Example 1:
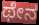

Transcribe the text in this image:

ಥೇನ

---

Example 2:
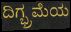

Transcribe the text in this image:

ದಿಗ್ಭ್ರಮೆಯ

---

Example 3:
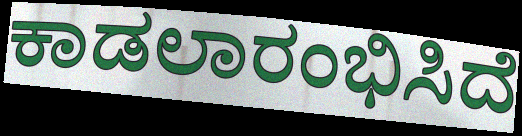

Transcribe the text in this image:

ಕಾಡಲಾರಂಭಿಸಿದೆ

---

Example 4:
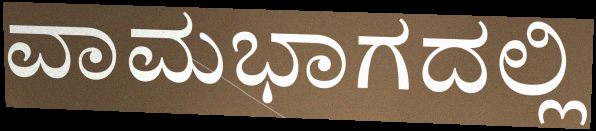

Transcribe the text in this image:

ವಾಮಭಾಗದಲ್ಲಿ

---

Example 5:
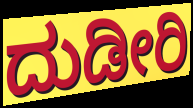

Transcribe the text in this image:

ದುಡೀರಿ